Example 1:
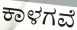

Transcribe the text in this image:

ಕಾಳಗವೆ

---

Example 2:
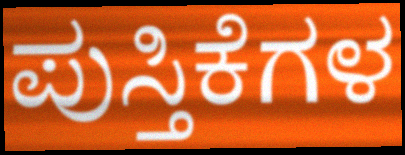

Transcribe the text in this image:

ಪುಸ್ತಿಕೆಗಳ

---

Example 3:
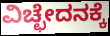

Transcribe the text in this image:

ವಿಚ್ಛೇದನಕ್ಕೆ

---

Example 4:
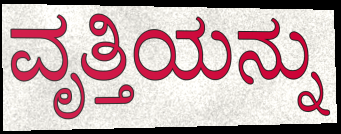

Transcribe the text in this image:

ವೃತ್ತಿಯನ್ನು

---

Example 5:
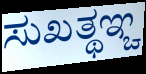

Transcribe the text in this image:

ಸುಖತ್ಥಞ್ಚ